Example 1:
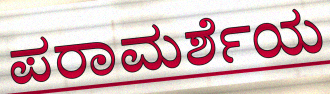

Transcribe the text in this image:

ಪರಾಮರ್ಶೆಯ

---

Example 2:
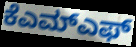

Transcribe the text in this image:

ಕೆಎಮ್ಎಫ್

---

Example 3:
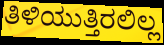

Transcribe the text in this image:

ತಿಳಿಯುತ್ತಿರಲಿಲ್ಲ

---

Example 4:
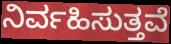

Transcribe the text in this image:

ನಿರ್ವಹಿಸುತ್ತವೆ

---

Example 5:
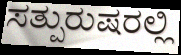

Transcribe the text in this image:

ಸತ್ಪುರುಷರಲ್ಲಿ